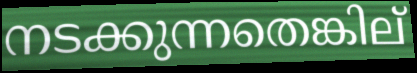
നടക്കുന്നതെങ്കില്